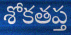
శోకతప్త